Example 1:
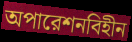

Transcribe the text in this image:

অপারেশনবিহীন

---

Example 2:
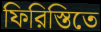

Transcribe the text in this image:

ফিরিস্তিতে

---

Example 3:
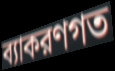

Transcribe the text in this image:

ব্যাকরণগত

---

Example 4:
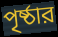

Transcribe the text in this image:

পৃষ্ঠার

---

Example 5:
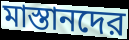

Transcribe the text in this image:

মাস্তানদের